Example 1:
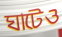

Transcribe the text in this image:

ঘাটেও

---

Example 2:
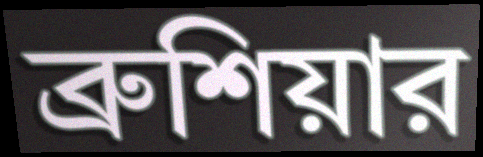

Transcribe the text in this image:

ব্রুশিয়ার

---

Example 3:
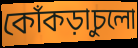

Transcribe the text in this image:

কোঁকড়াচুলো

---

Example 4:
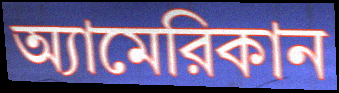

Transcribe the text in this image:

অ্যামেরিকান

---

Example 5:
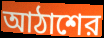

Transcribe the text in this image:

আঠাশের